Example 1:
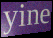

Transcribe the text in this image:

yine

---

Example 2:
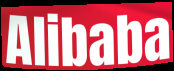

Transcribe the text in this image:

Alibaba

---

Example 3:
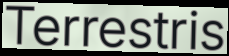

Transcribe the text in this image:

Terrestris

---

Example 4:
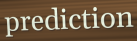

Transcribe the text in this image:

prediction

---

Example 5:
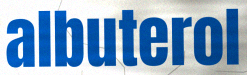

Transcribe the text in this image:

albuterol